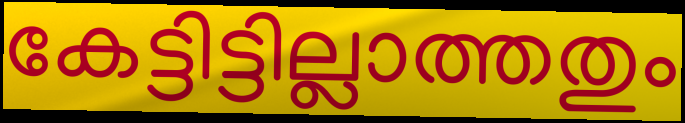
കേട്ടിട്ടില്ലാത്തതും